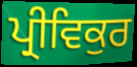
ਪ੍ਰੀਵਿਕੁਰ